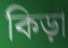
কিড়া